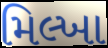
મિલ્ખા